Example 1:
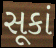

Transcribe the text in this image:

સૂકાં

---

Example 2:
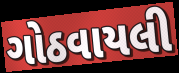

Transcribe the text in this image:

ગોઠવાયલી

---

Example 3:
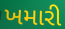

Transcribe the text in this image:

ખમારી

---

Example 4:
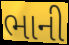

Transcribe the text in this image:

ભાની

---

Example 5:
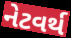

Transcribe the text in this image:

નેટવર્થ